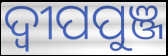
ଦ୍ଵୀପପୁଞ୍ଜ